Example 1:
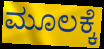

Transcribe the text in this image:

ಮೂಲಕ್ಕೆ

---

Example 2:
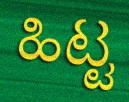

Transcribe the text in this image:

ಹಿಟ್ಟ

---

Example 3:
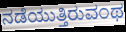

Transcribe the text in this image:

ನಡೆಯುತ್ತಿರುವಂಥ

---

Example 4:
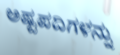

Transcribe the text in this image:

ಅಷ್ಟಪದಿಗಳನ್ನು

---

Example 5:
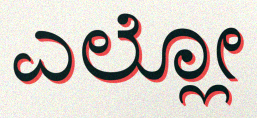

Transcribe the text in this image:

ಎಲ್ಲೋ